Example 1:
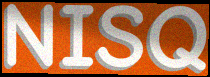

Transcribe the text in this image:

NISQ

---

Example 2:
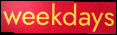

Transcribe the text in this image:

weekdays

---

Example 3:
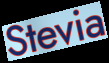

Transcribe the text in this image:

Stevia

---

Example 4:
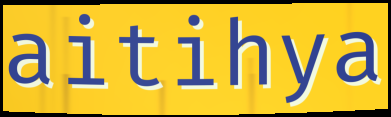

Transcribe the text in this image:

aitihya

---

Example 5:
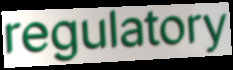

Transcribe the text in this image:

regulatory